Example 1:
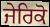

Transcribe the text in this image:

ਜੇਰਿਕੋ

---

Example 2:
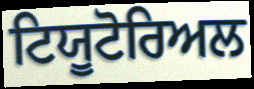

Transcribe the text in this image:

ਟਿਯੂਟੋਰਿਅਲ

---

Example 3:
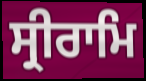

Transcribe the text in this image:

ਸ੍ਰੀਰਾਮਿ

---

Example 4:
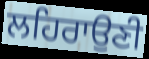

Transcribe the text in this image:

ਲਹਿਰਾਉਣੀ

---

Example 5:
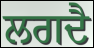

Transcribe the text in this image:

ਲਗਦੈ